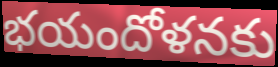
భయందోళనకు